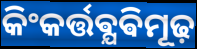
କିଂକର୍ତ୍ତଵ୍ଯଵିମୂଢ଼